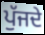
ਪੁੱਜਦੇ